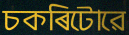
চকৰিটোৱে